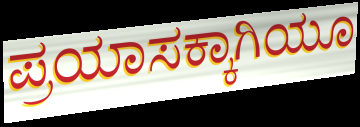
ಪ್ರಯಾಸಕ್ಕಾಗಿಯೂ